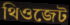
থিওজেট